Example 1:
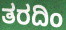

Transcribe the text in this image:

ತರದಿಂ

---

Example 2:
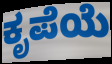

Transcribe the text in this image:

ಕೃಪೆಯೆ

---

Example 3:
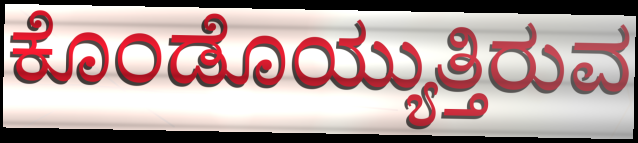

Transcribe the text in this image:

ಕೊಂಡೊಯ್ಯುತ್ತಿರುವ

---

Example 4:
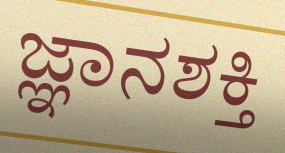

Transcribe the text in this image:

ಜ್ಞಾನಶಕ್ತಿ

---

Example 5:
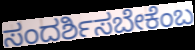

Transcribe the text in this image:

ಸಂದರ್ಶಿಸಬೇಕೆಂಬ